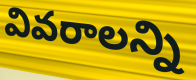
వివరాలన్ని